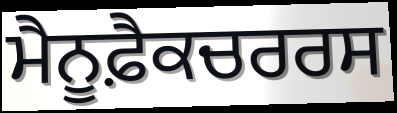
ਮੈਨੂਫ਼ੈਕਚਰਰਸ